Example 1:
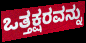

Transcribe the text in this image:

ಒತ್ತಕ್ಷರವನ್ನು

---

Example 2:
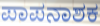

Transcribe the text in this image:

ಪಾಪನಾಶಕ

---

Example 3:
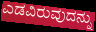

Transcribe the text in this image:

ಎಡವಿರುವುದನ್ನು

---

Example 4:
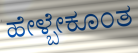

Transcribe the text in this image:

ಹೇಳ್ಬೇಕೂಂತ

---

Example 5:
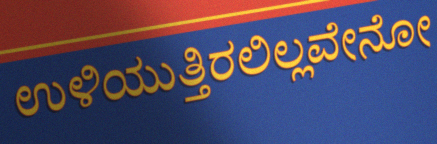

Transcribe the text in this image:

ಉಳಿಯುತ್ತಿರಲಿಲ್ಲವೇನೋ